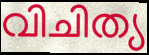
വിചിത്യ